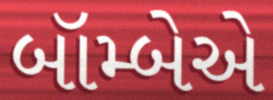
બૉમ્બેએ